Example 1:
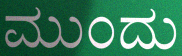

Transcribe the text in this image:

ಮುಂದು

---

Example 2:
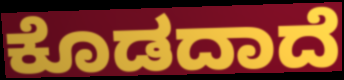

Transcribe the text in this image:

ಕೊಡದಾದೆ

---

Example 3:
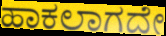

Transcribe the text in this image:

ಹಾಕಲಾಗದೇ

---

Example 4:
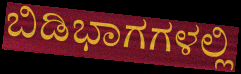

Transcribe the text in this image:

ಬಿಡಿಭಾಗಗಳಲ್ಲಿ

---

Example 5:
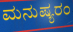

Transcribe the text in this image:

ಮನುಷ್ಯರಂ